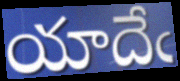
యాదేఁ